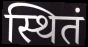
स्थितं